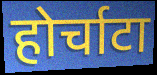
होर्चाटा